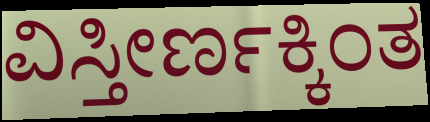
ವಿಸ್ತೀರ್ಣಕ್ಕಿಂತ